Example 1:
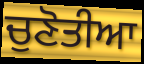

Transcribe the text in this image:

ਚੁਣੋਤੀਆ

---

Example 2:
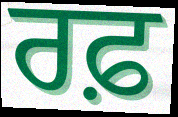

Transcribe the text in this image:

ਰਫ਼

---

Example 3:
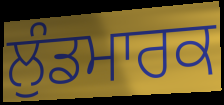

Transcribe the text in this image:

ਲੁੰਡਮਾਰਕ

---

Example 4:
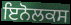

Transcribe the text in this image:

ਇਨੋਲਕਸ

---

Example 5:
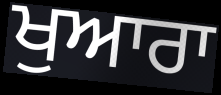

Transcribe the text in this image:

ਖੁਆਰਾ